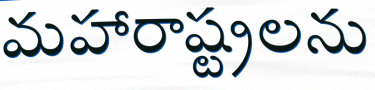
మహారాష్ట్రలను